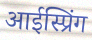
आईस्प्रिंग